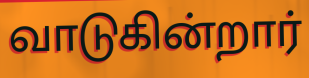
வாடுகின்றார்